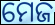
ମେଜ